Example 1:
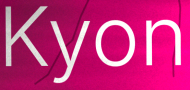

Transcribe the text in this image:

Kyon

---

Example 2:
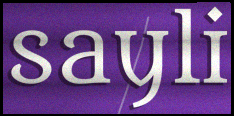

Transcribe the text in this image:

sayli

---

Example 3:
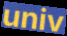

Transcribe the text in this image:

univ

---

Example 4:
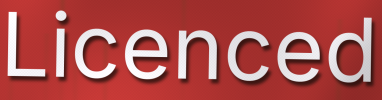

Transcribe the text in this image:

Licenced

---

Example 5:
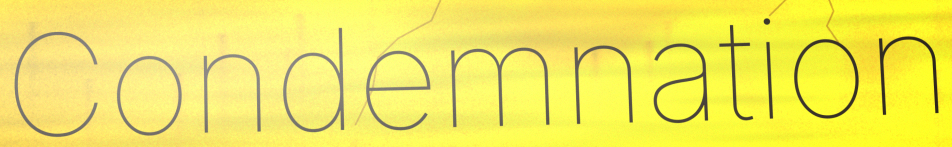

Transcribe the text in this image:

Condemnation